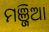
ମଞ୍ଜିଆ